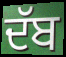
ਦੱਬ